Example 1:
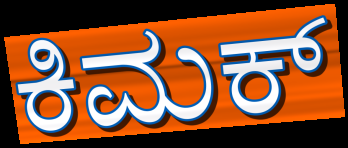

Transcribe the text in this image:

ಕಿಮಕ್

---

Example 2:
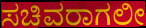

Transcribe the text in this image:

ಸಚಿವರಾಗಲೀ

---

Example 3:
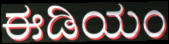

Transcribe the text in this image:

ಈಡಿಯಂ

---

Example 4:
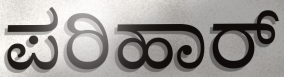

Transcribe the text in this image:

ಪರಿಹಾರ್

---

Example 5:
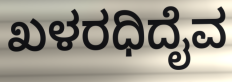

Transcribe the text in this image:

ಖಳರಧಿದೈವ